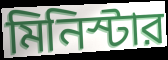
মিনিস্টার